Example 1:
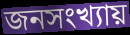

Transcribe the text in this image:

জনসংখ্যায়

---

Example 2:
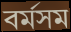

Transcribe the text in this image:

বর্মসম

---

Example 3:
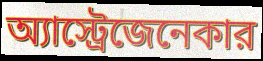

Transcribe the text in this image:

অ্যাস্ট্রেজেনেকার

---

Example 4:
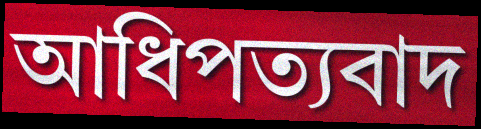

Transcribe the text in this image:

আধিপত্যবাদ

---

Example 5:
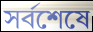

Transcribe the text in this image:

সর্বশেষে